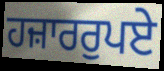
ਹਜ਼ਾਰਰੁਪਏ